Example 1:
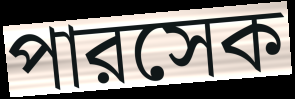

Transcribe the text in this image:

পারসেক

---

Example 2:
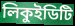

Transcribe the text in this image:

লিকুইডিটি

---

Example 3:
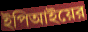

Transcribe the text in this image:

ইপিআইয়ের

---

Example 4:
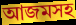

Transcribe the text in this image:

আজমসহ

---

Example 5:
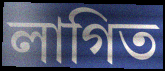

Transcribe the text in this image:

লাগিত